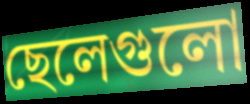
ছেলেগুলো